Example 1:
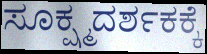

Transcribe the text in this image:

ಸೂಕ್ಷ್ಮದರ್ಶಕಕ್ಕೆ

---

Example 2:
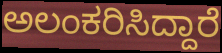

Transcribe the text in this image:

ಅಲಂಕರಿಸಿದ್ದಾರೆ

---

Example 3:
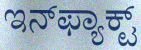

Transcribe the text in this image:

ಇನ್‌ಫ್ಯಾಕ್ಟ್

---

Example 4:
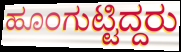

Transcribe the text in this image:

ಹೂಂಗುಟ್ಟಿದ್ದರು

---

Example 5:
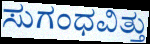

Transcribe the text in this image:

ಸುಗಂಧವಿತ್ತು